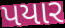
પયાર